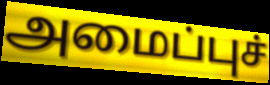
அமைப்புச்